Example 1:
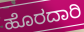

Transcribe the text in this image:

ಹೊರದಾರಿ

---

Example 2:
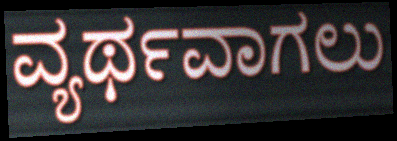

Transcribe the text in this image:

ವ್ಯರ್ಥವಾಗಲು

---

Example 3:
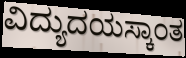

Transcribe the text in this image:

ವಿದ್ಯುದಯಸ್ಕಾಂತ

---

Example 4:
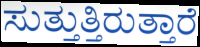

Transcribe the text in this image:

ಸುತ್ತುತ್ತಿರುತ್ತಾರೆ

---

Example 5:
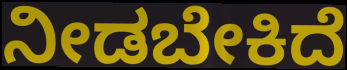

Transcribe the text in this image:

ನೀಡಬೇಕಿದೆ